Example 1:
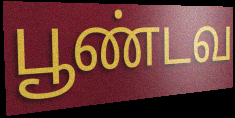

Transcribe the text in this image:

பூண்டவ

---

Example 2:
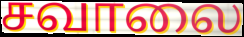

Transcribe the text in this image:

சவாலை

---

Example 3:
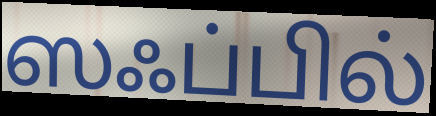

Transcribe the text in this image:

ஸஃப்பில்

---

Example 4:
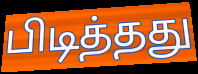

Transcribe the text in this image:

பிடித்தது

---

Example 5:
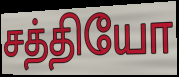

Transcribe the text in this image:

சத்தியோ